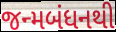
જન્મબંધનથી